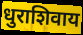
धुराशिवाय